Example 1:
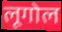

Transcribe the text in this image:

लूगोल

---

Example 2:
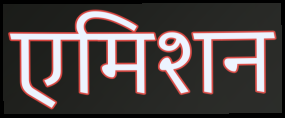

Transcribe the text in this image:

एमिशन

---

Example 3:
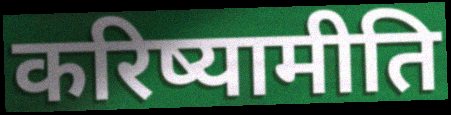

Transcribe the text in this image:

करिष्यामीति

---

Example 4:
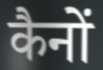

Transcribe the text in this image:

कैनों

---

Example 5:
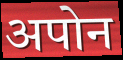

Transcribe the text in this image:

अपोन